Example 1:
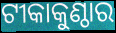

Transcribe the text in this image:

ଟୀକାକୁଣ୍ଠାର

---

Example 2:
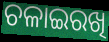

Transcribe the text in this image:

ଚଳାଇରଖି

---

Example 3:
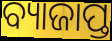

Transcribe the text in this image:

ବ୍ୟାଜାପ୍ତ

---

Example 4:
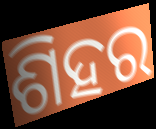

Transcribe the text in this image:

ଶିହର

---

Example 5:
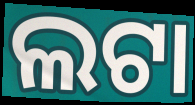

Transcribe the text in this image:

ଲଟା